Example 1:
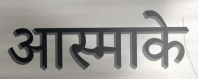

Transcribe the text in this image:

आस्माके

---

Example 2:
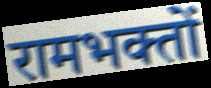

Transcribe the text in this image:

रामभक्तों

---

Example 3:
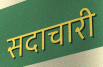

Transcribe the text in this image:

सदाचारी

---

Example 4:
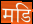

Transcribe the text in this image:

मडि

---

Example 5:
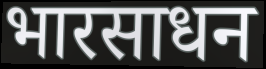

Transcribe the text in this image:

भारसाधन